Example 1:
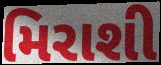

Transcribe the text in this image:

મિરાશી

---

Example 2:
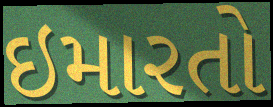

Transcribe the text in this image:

ઇમારતો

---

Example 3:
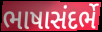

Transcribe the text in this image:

ભાષાસંદર્ભે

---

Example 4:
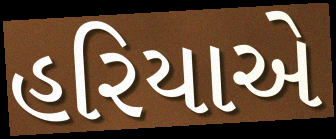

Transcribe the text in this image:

હરિયાએ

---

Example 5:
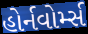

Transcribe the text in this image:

હોર્નવોર્મ્સ